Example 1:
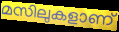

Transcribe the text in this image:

മസിലുകളാണ്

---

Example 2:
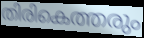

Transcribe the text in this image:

തിരികെത്തരും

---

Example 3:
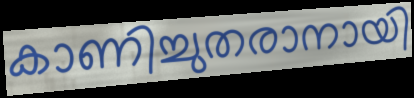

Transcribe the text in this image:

കാണിച്ചുതരാനായി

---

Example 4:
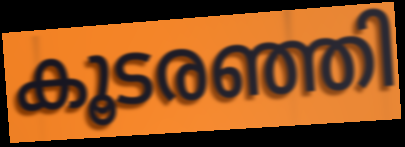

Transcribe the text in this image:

കൂടരഞ്ഞി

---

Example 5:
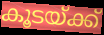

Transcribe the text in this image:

കൂടയ്ക്ക്